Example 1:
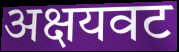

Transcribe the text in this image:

अक्षयवट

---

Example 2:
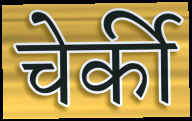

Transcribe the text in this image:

चेर्की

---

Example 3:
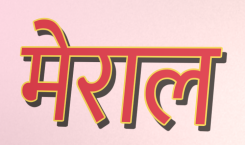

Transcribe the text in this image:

मेराल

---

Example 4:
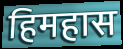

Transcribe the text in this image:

हिमहास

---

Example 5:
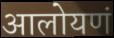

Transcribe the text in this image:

आलोयणं